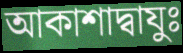
আকাশাদ্বাযুঃ